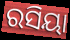
ରସିୟା